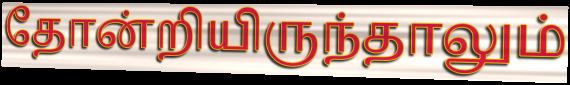
தோன்றியிருந்தாலும்